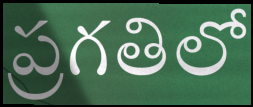
ప్రగతిలో